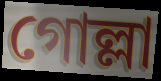
গোল্লা